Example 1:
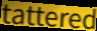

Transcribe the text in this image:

tattered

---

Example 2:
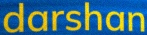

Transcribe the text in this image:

darshan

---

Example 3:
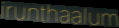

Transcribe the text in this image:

irunthaalum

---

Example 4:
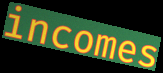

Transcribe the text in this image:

incomes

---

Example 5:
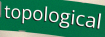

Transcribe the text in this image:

topological